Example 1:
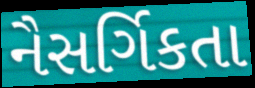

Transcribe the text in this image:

નૈસર્ગિકતા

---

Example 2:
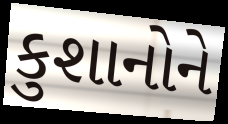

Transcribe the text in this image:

કુશાનોને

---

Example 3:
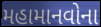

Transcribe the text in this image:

મહામાનવોના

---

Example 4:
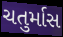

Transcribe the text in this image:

ચતુર્માસ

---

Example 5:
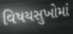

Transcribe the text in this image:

વિષયસુખોમાં